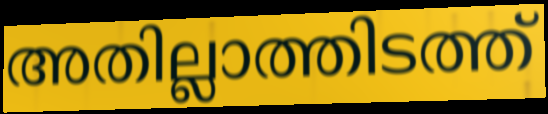
അതില്ലാത്തിടത്ത്